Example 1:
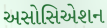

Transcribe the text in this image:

અસોસિએશન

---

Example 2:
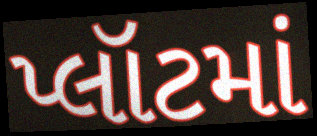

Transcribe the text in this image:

પ્લૉટમાં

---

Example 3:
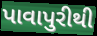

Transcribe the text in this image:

પાવાપુરીથી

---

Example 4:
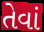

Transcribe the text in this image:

તેવાં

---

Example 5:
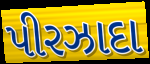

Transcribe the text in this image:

પીરઝાદા